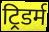
ट्रिडर्म